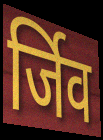
र्जिव